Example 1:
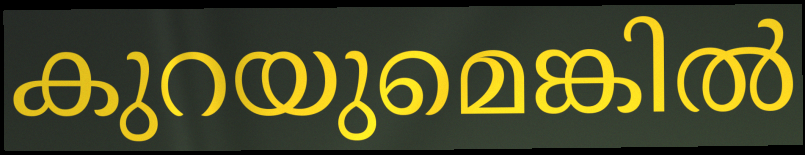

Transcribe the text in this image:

കുറയുമെങ്കിൽ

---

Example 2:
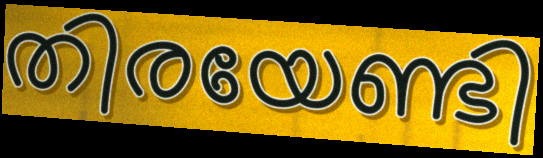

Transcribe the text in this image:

തിരയേണ്ടി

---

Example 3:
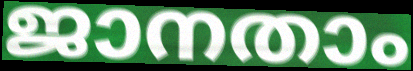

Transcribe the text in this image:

ജാനതാം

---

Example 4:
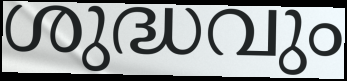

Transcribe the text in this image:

ശുദ്ധവും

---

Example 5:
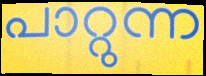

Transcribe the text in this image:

പാറ്റുന്ന